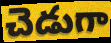
చెడుగా